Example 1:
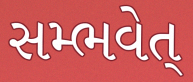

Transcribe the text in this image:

સમ્ભવેત્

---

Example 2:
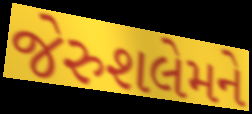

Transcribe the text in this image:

જેરુશલેમને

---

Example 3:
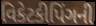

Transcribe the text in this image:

વિકેટકીપિંગની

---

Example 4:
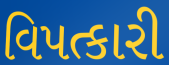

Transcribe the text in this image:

વિપત્કારી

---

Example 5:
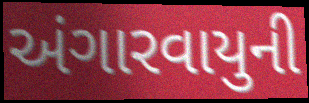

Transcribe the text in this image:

અંગારવાયુની